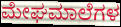
ಮೇಘಮಾಲೆಗಳ